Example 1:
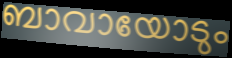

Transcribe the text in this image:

ബാവായോടും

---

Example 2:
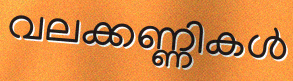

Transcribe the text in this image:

വലക്കണ്ണികൾ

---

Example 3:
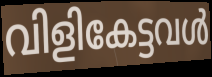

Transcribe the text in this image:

വിളികേട്ടവൾ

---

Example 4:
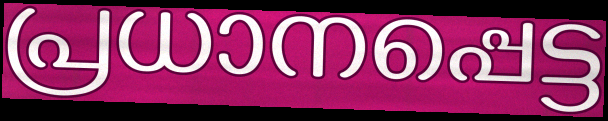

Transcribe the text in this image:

പ്രധാനപ്പെട്ട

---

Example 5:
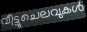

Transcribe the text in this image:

വീട്ടുചെലവുകൾ